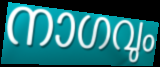
നാഗവും